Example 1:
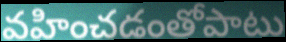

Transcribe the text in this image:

వహించడంతోపాటు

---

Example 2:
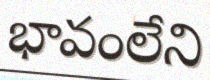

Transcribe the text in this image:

భావంలేని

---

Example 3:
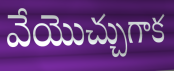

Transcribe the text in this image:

వేయొచ్చుగాక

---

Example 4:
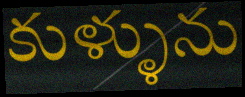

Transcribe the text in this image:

కుళ్ళును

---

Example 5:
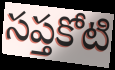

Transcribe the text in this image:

సప్తకోటి